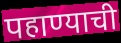
पहाण्याची